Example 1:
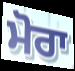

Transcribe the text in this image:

ਮੋਰਾ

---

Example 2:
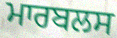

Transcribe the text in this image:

ਮਾਰਬਲਸ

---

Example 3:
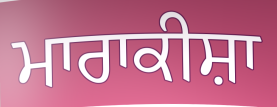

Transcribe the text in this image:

ਮਾਰਾਕੀਸ਼ਾ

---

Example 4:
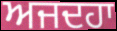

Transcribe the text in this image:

ਅਜਦਹਾ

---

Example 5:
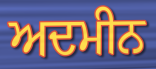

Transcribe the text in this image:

ਅਦਮੀਨ